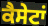
ਕੈਸੇਟਾਂ